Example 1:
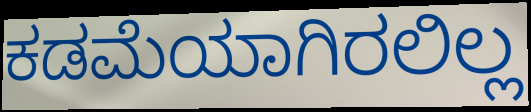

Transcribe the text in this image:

ಕಡಮೆಯಾಗಿರಲಿಲ್ಲ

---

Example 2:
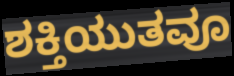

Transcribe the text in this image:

ಶಕ್ತಿಯುತವೂ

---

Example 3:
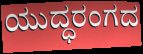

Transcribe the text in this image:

ಯುದ್ಧರಂಗದ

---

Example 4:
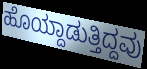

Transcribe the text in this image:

ಹೊಯ್ದಾಡುತ್ತಿದ್ದವು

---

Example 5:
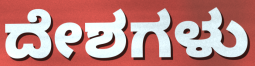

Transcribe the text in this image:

ದೇಶಗಳು